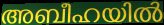
അബീഹയിൽ